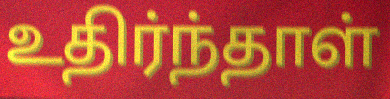
உதிர்ந்தாள்